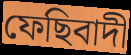
ফেছিবাদী